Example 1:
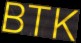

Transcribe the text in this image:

BTK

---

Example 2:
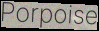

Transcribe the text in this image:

Porpoise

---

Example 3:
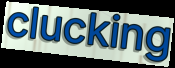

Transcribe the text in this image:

clucking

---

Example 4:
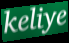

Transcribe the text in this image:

keliye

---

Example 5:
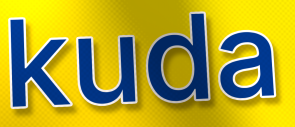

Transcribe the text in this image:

kuda